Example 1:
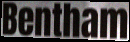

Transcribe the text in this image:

Bentham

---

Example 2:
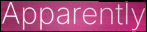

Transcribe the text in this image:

Apparently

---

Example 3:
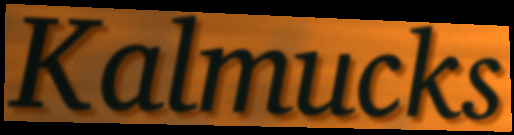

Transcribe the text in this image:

Kalmucks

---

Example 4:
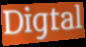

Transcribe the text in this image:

Digtal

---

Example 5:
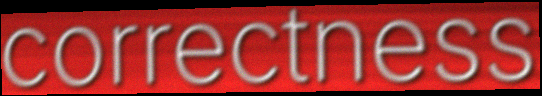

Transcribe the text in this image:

correctness